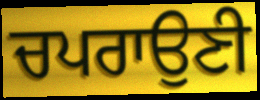
ਚਪਰਾਉਣੀ